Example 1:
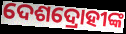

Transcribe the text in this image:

ଦେଶଦ୍ରୋହୀଙ୍କ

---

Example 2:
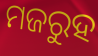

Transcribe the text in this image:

ମଜରୁହ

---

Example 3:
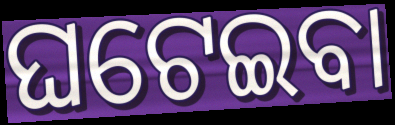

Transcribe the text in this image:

ଘଟେଇବା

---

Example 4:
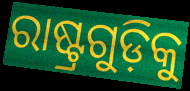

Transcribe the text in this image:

ରାଷ୍ଟ୍ରଗୁଡ଼ିକୁ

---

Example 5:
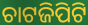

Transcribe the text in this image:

ଚାଟଜିପିଟି